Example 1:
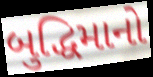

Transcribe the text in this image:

બુદ્ધિમાનો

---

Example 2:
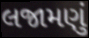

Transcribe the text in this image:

લજામણું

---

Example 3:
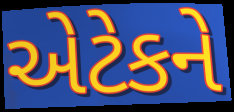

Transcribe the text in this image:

એટેકને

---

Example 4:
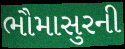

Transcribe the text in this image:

ભૌમાસુરની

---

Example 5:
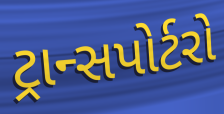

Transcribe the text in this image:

ટ્રાન્સપોર્ટરો